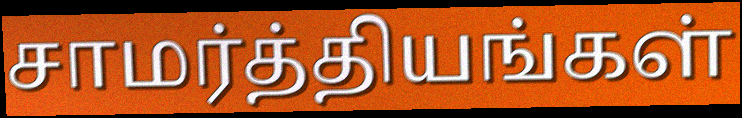
சாமர்த்தியங்கள்